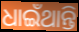
ଧାଇଁଥାନ୍ତି